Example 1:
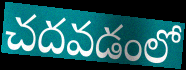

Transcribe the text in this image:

చదవడంలో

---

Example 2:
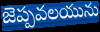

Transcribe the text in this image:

జెప్పవలయును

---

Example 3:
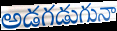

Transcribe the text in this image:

అడగడుగునా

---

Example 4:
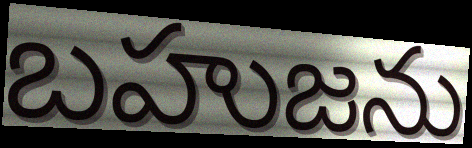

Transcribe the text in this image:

బహుజను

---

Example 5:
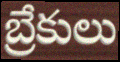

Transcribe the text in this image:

బ్రేకులు